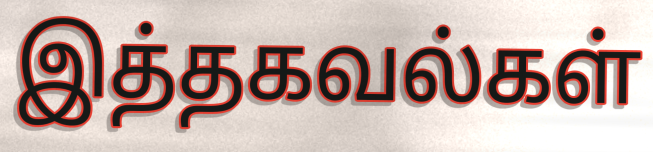
இத்தகவல்கள்